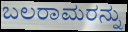
ಬಲರಾಮರನ್ನು